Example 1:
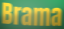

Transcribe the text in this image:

Brama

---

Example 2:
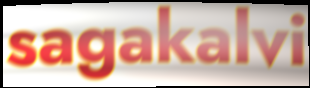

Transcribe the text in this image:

sagakalvi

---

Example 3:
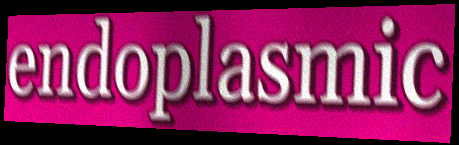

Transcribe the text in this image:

endoplasmic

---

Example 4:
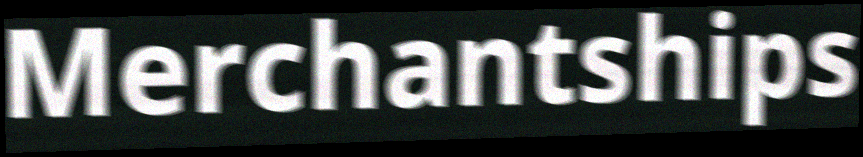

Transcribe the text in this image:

Merchantships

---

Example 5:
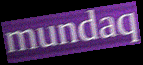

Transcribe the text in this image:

mundaq